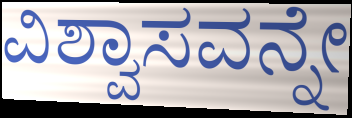
ವಿಶ್ವಾಸವನ್ನೇ